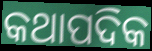
କଥାପଦିକ